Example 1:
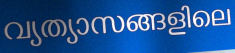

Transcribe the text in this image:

വ്യത്യാസങ്ങളിലെ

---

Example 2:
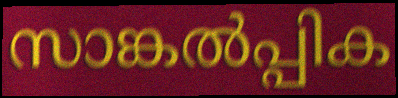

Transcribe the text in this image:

സാങ്കൽപ്പിക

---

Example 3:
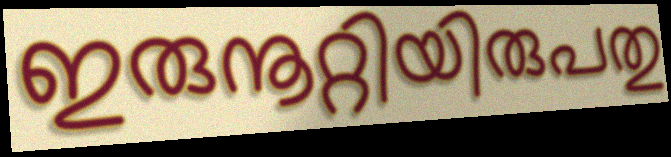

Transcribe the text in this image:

ഇരുനൂറ്റിയിരുപതു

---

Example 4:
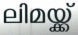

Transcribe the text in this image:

ലിമയ്ക്ക്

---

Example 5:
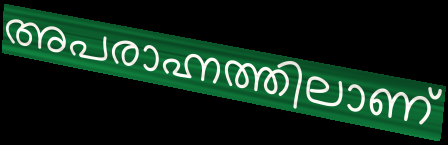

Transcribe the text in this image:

അപരാഹ്നത്തിലാണ്